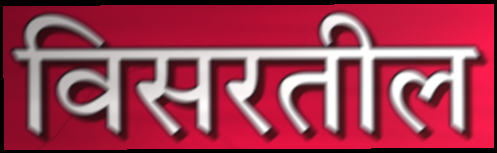
विसरतील